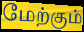
மேற்கும்